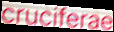
cruciferae